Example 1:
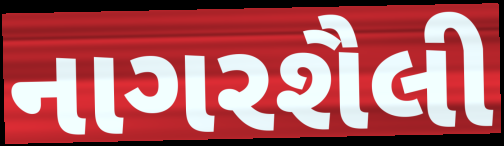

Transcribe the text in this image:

નાગરશૈલી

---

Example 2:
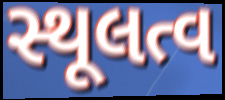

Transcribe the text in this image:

સ્થૂલત્વ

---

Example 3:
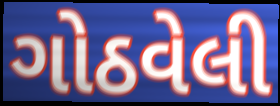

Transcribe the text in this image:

ગોઠવેલી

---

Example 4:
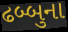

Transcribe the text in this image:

ઢબ્બુના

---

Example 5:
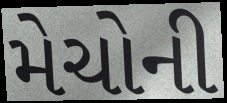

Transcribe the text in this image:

મેચોની